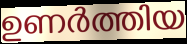
ഉണർത്തിയ